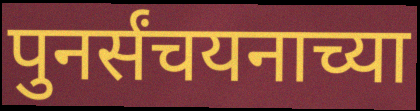
पुनर्संचयनाच्या